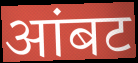
आंबट